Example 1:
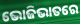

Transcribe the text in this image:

ଭୋଜିଭାତରେ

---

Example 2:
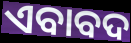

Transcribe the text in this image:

ଏବାବଦ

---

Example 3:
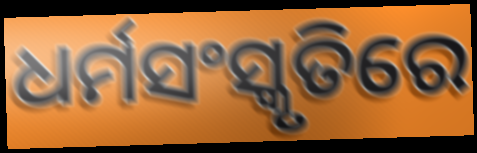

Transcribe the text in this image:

ଧର୍ମସଂସ୍କୃତିରେ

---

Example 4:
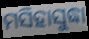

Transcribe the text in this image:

ମସିହାସୁଦ୍ଧା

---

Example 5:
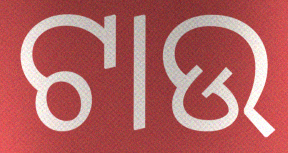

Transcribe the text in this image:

ଟାଉ